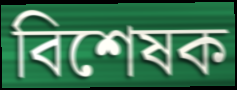
বিশেষক